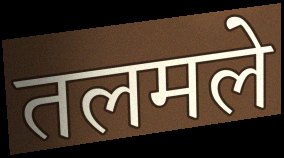
तलमले